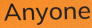
Anyone